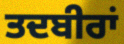
ਤਦਬੀਰਾਂ